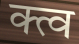
क्त्व